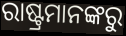
ରାଷ୍ଟ୍ରମାନଙ୍କରୁ